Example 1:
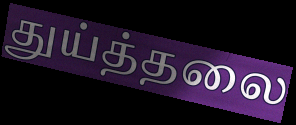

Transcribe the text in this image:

துய்த்தலை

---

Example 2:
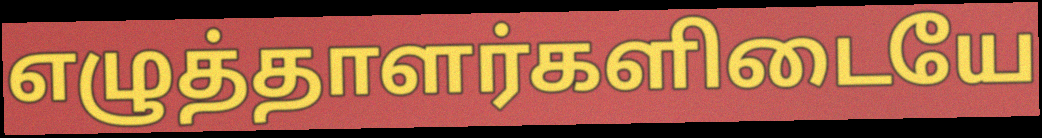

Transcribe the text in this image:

எழுத்தாளர்களிடையே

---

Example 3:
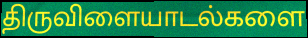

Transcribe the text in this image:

திருவிளையாடல்களை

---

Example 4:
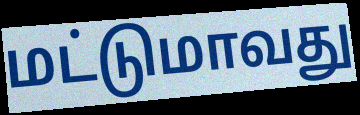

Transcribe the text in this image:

மட்டுமாவது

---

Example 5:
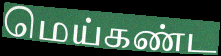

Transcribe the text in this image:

மெய்கண்ட